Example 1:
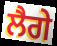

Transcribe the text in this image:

ਲੈਗੇ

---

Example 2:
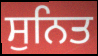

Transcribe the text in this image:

ਸੁਨਿਤ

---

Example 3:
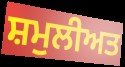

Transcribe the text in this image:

ਸ਼ਮੁਲੀਅਤ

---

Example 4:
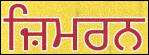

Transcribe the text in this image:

ਜ਼ਿਮਰਨ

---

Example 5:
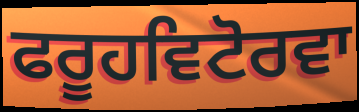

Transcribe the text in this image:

ਫਰੂਹਵਿਟੋਰਵਾ